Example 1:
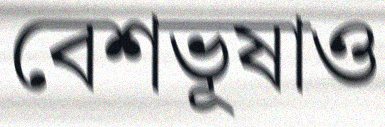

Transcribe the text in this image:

বেশভূষাও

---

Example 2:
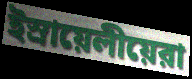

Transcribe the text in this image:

ইস্রায়েলীয়েরা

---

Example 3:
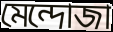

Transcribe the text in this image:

মেন্দোজা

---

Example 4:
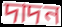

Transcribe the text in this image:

দাদন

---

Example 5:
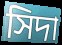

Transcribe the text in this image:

সিদা